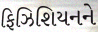
ફિઝિશિયનને